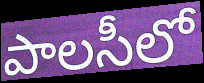
పాలసీలో